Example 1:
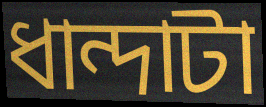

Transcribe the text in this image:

ধান্দাটা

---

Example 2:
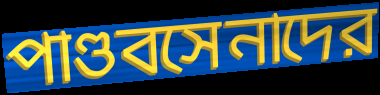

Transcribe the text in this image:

পাণ্ডবসেনাদের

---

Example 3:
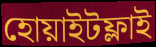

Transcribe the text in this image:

হোয়াইটফ্লাই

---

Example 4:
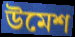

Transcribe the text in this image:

উমেশ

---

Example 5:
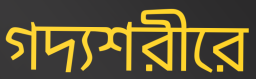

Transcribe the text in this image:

গদ্যশরীরে